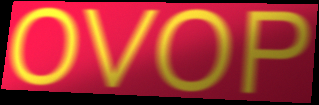
OVOP